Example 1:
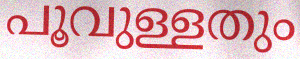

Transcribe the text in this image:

പൂവുള്ളതും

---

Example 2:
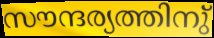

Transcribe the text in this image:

സൗന്ദര്യത്തിനു്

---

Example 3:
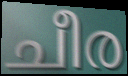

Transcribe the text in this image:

ചീര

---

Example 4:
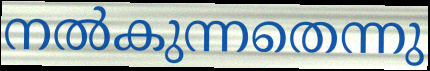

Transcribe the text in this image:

നൽകുന്നതെന്നു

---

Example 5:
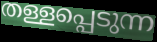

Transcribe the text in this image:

തള്ളപ്പെടുന്ന